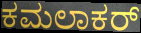
ಕಮಲಾಕರ್